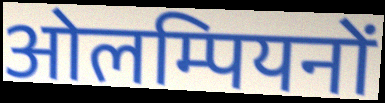
ओलम्पियनों